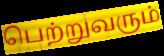
பெற்றுவரும்